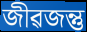
জীৱজন্তু